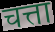
चत्ता